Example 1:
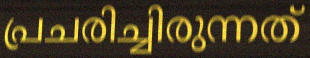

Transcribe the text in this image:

പ്രചരിച്ചിരുന്നത്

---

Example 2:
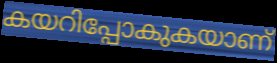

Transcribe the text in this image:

കയറിപ്പോകുകയാണ്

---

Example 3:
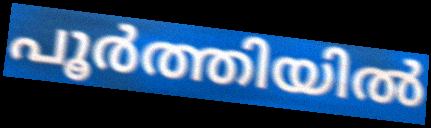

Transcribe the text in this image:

പൂർത്തിയിൽ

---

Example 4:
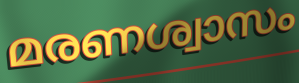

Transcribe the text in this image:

മരണശ്വാസം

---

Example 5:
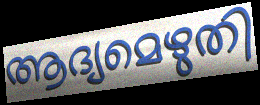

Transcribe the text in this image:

ആദ്യമെഴുതി